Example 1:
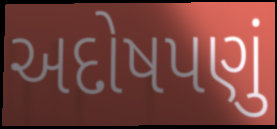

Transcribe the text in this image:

અદોષપણું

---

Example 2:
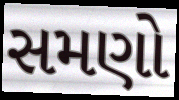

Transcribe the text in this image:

સમણો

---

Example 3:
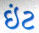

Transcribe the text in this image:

ઇંટ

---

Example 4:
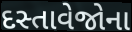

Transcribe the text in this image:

દસ્તાવેજોના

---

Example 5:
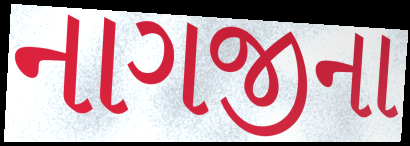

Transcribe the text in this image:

નાગજીના